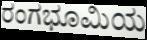
ರಂಗಭೂಮಿಯ